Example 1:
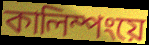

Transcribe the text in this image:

কালিম্পংয়ে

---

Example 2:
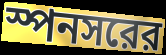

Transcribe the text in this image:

স্পনসরের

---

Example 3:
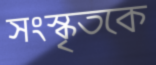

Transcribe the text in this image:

সংস্কৃতকে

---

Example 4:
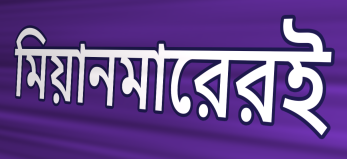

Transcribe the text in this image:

মিয়ানমারেরই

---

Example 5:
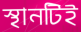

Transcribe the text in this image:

স্থানটিই